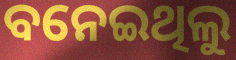
ବନେଇଥିଲୁ